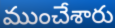
ముంచేశారు